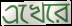
এখেরে